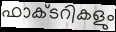
ഫാക്ടറികളും